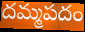
దమ్మపదం